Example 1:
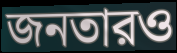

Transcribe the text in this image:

জনতারও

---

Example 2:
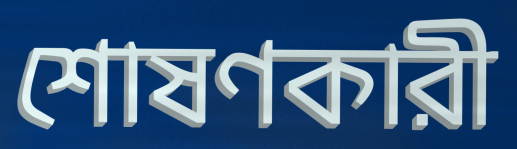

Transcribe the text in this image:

শোষণকারী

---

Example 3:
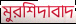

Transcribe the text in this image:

মুরশিদাবাদ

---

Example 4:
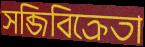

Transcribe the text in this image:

সব্জিবিক্রেতা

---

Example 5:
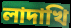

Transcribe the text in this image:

লাদাখি